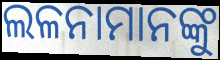
ଲଳନାମାନଙ୍କୁ